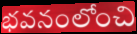
భవనంలోంచి